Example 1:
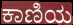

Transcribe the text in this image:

ಕಾಣಿಯ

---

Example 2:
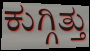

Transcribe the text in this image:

ಕುಗ್ಗಿತ್ತು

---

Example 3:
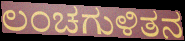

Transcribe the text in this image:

ಲಂಚಗುಳಿತನ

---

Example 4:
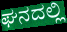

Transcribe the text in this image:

ಘನದಲ್ಲಿ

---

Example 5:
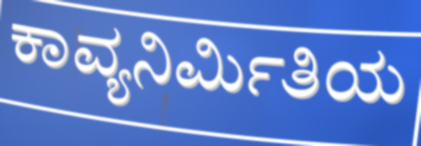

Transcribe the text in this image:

ಕಾವ್ಯನಿರ್ಮಿತಿಯ